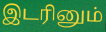
இடரினும்